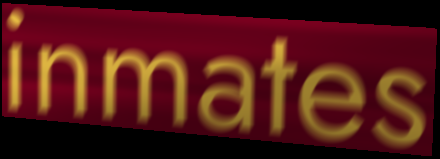
inmates